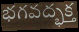
భగవద్భక్త